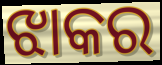
ଝାକର